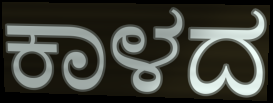
ಕಾಳದ